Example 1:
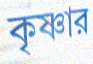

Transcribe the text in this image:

কৃষ্ণার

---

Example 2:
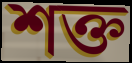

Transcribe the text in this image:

শক্ত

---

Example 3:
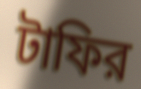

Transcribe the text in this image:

টাফির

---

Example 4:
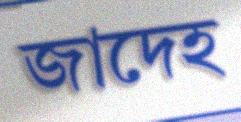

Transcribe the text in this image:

জাদেহ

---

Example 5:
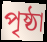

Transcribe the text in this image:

পৃষ্ঠা